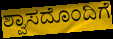
ಶ್ವಾಸದೊಂದಿಗೆ